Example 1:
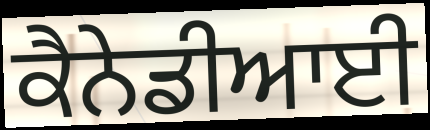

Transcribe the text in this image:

ਕੈਨੇਡੀਆਈ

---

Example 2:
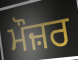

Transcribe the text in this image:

ਮੌਜ਼ਰ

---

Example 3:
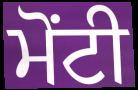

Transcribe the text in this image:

ਮੋਂਟੀ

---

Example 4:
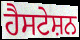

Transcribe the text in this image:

ਹੈਸਟੇਸ਼ਨ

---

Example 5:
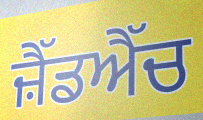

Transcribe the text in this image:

ਜ਼ੈੱਡਐੱਚ